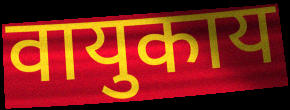
वायुकाय